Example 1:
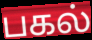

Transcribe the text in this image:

பகல்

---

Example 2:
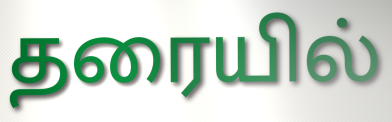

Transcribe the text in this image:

தரையில்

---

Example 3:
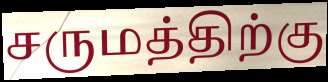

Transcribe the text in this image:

சருமத்திற்கு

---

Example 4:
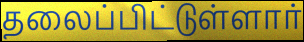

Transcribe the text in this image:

தலைப்பிட்டுள்ளார்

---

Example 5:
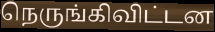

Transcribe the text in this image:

நெருங்கிவிட்டன